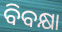
ବିବକ୍ଷା